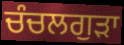
ਚੰਚਲਗੁੜਾ